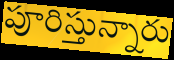
పూరిస్తున్నారు